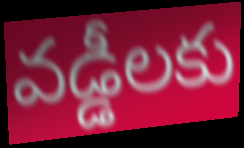
వడ్డీలకు